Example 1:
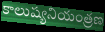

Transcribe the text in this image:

కాలుష్యనియంత్రణ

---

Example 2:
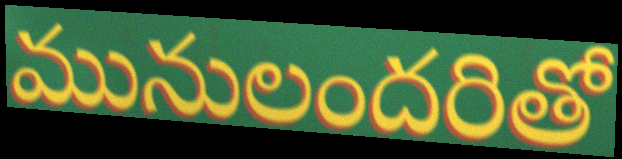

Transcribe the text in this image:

మునులందరితో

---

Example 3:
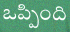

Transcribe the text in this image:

ఒప్పింది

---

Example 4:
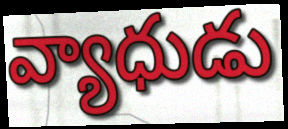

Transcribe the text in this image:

వ్యాధుడు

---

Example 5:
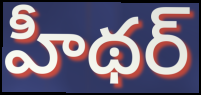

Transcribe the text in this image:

హీథర్